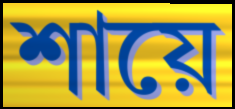
শায়ে